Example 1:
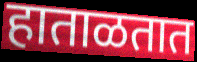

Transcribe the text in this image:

हाताळतात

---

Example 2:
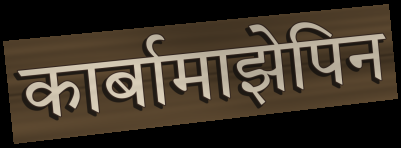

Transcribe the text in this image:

कार्बामाझेपिन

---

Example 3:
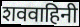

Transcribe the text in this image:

शववाहिनी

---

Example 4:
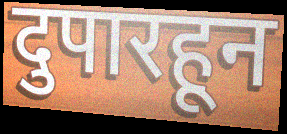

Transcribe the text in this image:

दुपारहून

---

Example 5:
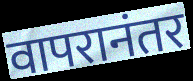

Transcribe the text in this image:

वापरानंतर